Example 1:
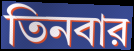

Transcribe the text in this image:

তিনবার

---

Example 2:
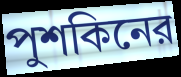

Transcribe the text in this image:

পুশকিনের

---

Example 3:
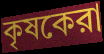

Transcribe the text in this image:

কৃষকেরা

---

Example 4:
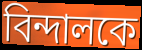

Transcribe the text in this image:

বিন্দালকে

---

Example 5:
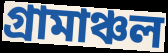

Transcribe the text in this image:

গ্রামাঞ্চল